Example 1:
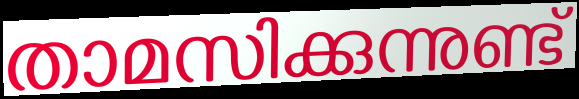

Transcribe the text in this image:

താമസിക്കുന്നുണ്ട്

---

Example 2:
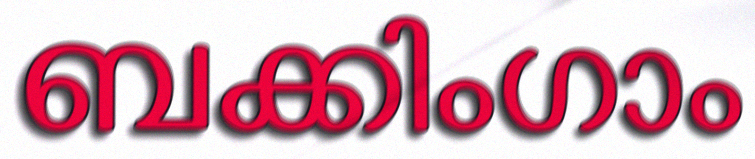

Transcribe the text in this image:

ബക്കിംഗാം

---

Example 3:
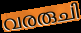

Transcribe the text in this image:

വരരുചി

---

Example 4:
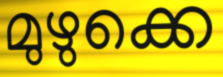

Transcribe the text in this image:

മുഴുക്കെ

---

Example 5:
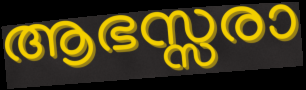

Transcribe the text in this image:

ആഭസ്സരാ